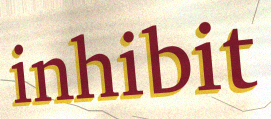
inhibit